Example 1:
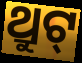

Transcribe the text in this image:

ଥ୍ରୁଟ୍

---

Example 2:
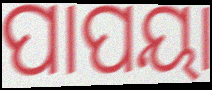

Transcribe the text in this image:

ପାପୟା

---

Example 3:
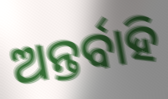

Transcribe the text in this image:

ଅନ୍ତର୍ବାହି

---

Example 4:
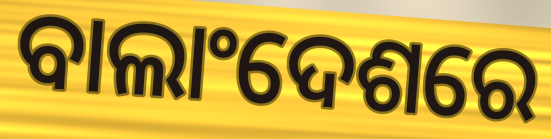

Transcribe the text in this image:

ବାଲାଂଦେଶରେ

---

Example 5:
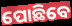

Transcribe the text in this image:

ପୋଛିବେ